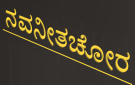
ನವನೀತಚೋರ